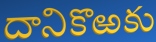
దానికొఱకు